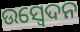
ଉସ୍ୱେଦନ